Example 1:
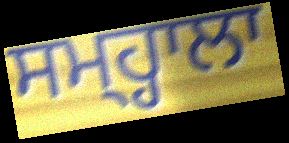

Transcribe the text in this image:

ਸਮ੍ਹ੍ਹਾਲਾ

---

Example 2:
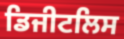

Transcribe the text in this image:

ਡਿਜੀਟਲਿਸ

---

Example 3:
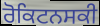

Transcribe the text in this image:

ਰੋਕਿਟਨਸਕੀ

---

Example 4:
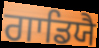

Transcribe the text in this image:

ਗਾਡਿਯੈ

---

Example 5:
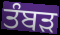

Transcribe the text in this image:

ਤੰਬੜ